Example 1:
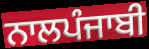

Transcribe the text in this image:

ਨਾਲਪੰਜਾਬੀ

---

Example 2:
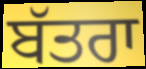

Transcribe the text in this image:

ਬੱਤਰਾ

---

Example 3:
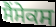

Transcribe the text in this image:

ਸੈਂਸੇਕਸ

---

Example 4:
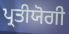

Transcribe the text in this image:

ਪ੍ਰਤੀਯੋਗੀ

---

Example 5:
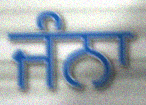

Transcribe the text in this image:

ਜੰਨਾ